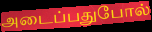
அடைப்பதுபோல்